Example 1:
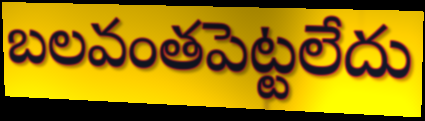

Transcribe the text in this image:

బలవంతపెట్టలేదు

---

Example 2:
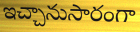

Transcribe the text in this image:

ఇచ్చానుసారంగా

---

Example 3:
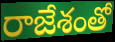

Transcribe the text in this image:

రాజేశంతో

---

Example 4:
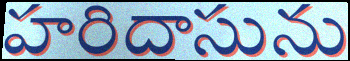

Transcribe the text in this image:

హరిదాసును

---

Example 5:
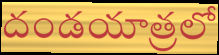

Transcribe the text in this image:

దండయాత్రలో